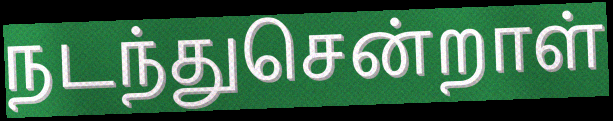
நடந்துசென்றாள்